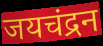
जयचंद्रन